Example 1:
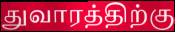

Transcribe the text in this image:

துவாரத்திற்கு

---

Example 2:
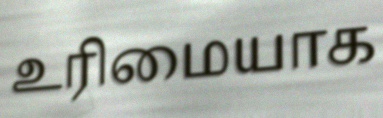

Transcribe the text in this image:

உரிமையாக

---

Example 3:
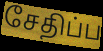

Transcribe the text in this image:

சேதிப்ப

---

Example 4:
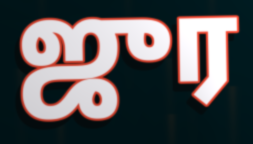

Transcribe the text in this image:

ஜுர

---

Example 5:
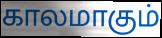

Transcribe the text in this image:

காலமாகும்